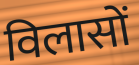
विलासों